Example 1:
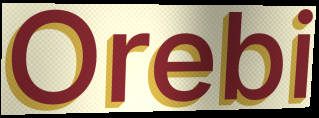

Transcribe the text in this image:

Orebi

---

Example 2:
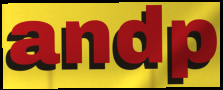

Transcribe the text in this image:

andp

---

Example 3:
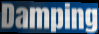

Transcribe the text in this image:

Damping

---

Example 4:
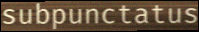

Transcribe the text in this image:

subpunctatus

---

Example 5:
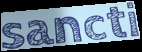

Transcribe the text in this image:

sancti